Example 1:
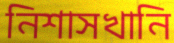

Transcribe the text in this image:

নিশাসখানি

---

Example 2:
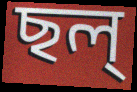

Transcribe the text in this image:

ছল্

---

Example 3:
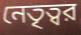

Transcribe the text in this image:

নেতৃত্বর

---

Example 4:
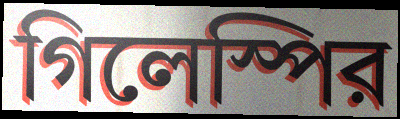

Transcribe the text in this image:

গিলেস্পির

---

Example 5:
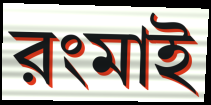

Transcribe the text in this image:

রংমাই